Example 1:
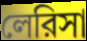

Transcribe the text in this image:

লেরিসা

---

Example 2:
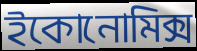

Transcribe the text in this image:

ইকোনোমিক্স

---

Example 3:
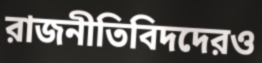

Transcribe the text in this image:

রাজনীতিবিদদেরও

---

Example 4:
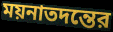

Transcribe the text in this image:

ময়নাতদন্তের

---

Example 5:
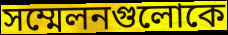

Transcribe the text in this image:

সম্মেলনগুলোকে